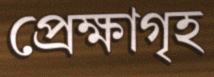
প্ৰেক্ষাগৃহ